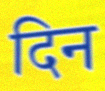
दिन